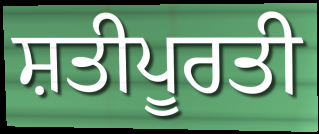
ਸ਼ਤੀਪੂਰਤੀ